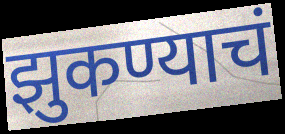
झुकण्याचं